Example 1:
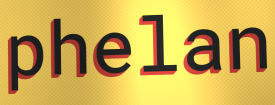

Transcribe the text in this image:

phelan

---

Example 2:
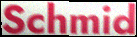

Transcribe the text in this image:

Schmid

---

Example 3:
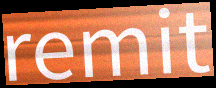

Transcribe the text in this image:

remit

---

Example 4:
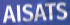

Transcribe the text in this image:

AISATS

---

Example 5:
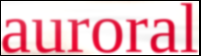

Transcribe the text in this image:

auroral